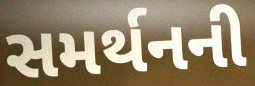
સમર્થનની